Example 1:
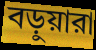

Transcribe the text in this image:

বড়ুয়ারা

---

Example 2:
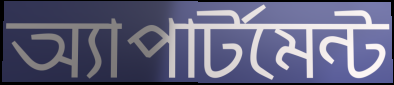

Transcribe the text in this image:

অ্যাপার্টমেন্ট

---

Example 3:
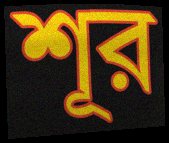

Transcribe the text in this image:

শূর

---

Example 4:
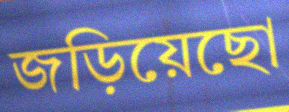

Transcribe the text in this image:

জড়িয়েছো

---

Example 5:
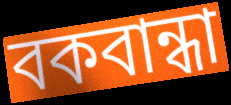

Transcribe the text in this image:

বকবান্ধা